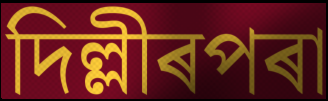
দিল্লীৰপৰা